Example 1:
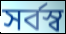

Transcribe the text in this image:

সৰ্বস্ব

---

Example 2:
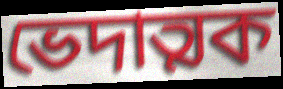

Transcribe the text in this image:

ভেদাত্মক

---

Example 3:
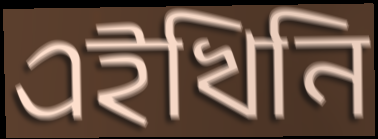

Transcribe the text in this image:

এইখিনি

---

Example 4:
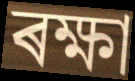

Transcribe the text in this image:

ৰক্ষা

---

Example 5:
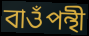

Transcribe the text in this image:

বাওঁপন্থী